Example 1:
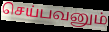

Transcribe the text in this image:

செய்பவனும்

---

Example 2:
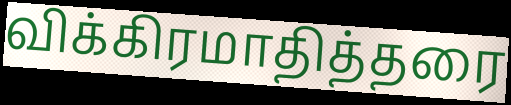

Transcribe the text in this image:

விக்கிரமாதித்தரை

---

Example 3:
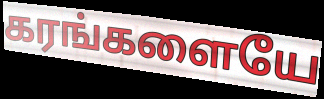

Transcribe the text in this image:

கரங்களையே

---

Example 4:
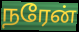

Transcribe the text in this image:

நரேன்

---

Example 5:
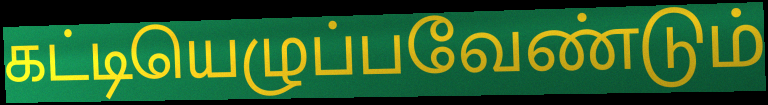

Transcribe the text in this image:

கட்டியெழுப்பவேண்டும்